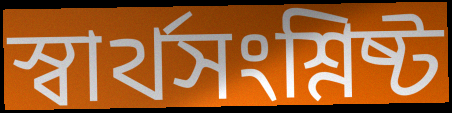
স্বার্থসংশ্নিষ্ট